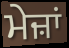
ਮੇਜ਼ਾਂ